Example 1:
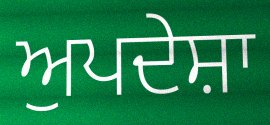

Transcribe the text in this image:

ਅੁਪਦੇਸ਼ਾ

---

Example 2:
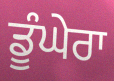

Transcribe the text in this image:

ਡੂੰਘੇਰਾ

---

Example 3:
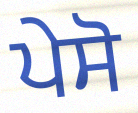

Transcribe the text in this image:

ਪੇਸੋ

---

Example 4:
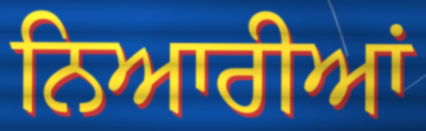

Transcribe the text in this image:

ਨਿਆਰੀਆਂ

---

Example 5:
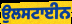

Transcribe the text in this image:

ਉਲਸਟਾਈਨ